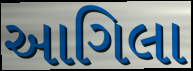
આગિલા